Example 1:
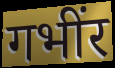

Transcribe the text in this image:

गभींर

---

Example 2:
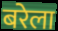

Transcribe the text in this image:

बरेला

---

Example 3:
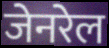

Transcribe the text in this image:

जेनरेल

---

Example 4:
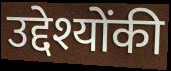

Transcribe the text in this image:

उद्देश्योंकी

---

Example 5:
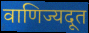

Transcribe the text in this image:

वाणिज्यदूत